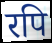
रपि